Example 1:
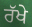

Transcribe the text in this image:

ਰੱਖੇ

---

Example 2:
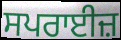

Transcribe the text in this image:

ਸਪਰਾਈਜ਼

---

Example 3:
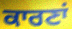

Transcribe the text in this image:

ਕਾਰਣਾਂ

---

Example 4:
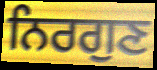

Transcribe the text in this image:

ਨਿਰਗੁਣ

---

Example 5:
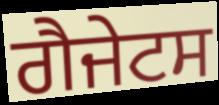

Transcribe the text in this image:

ਗੈਜੇਟਸ